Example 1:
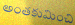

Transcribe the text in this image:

అంతకుమించి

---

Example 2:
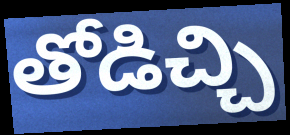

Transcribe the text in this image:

తోడిచ్చి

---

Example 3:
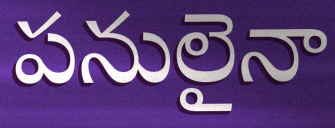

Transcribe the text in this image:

పనులైనా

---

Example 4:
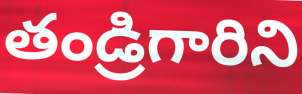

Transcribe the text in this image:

తండ్రిగారిని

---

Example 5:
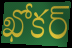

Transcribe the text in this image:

ఖోకర్